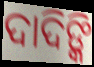
ଦାଦିଙ୍କି